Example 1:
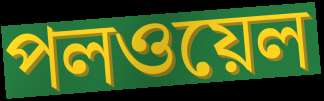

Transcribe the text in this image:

পলওয়েল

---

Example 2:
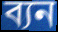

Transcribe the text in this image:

ব্যন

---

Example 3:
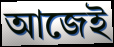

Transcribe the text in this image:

আজেই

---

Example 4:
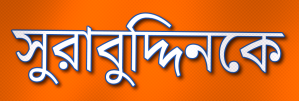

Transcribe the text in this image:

সুরাবুদ্দিনকে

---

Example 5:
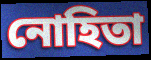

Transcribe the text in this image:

নোহিতা